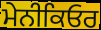
ਮੇਨੀਕਿਓਰ